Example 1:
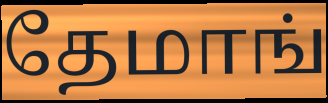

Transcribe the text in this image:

தேமாங்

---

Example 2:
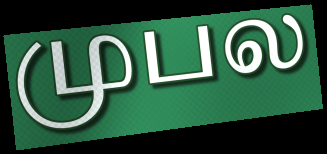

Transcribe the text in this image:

முபல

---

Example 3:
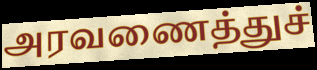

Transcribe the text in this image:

அரவணைத்துச்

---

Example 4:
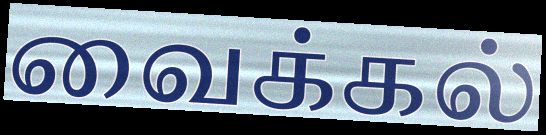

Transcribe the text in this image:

வைக்கல்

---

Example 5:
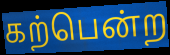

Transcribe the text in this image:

கற்பென்ற